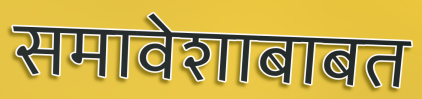
समावेशाबाबत